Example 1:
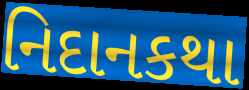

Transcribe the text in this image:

નિદાનકથા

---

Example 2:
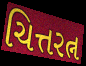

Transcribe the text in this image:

ચિત્તરત્ન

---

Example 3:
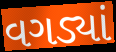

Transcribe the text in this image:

વગડ્યાં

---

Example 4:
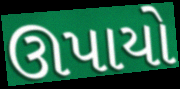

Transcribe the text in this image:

ઊપાયો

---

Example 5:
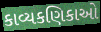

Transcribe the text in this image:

કાવ્યકણિકાઓ